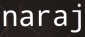
naraj